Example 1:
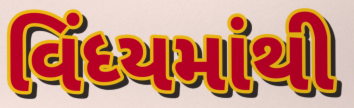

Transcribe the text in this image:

વિંધ્યમાંથી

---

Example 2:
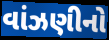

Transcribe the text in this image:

વાંઝણીનો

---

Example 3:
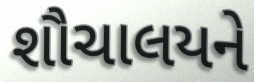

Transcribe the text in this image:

શૌચાલયને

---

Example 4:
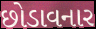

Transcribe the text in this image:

છોડાવનાર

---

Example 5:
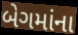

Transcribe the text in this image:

બેગમાંના